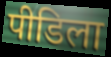
पीडिला